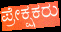
ಪ್ರೇಕ್ಷಕರು